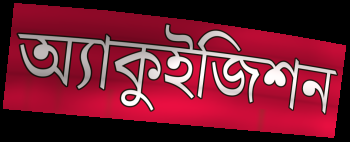
অ্যাকুইজিশন